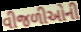
વીજળીઓની